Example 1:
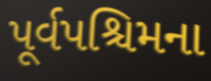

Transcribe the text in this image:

પૂર્વપશ્ચિમના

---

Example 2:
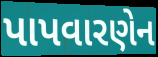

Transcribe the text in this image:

પાપવારણેન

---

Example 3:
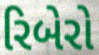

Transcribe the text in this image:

રિબેરો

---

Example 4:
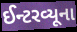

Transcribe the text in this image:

ઈન્ટરવ્યૂના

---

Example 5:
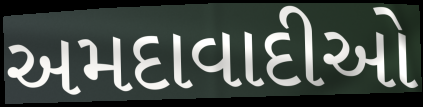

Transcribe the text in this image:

અમદાવાદીઓ